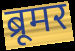
ब्रूमर